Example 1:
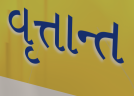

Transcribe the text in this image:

વૃત્તાન્ત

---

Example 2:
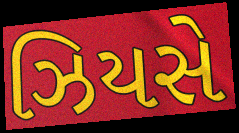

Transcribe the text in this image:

ઝિયસે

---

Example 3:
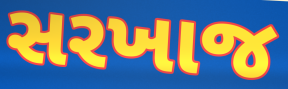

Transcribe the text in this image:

સરખાજ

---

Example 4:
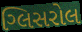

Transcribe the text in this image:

ગ્લિસરોલ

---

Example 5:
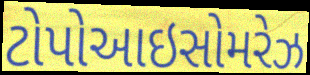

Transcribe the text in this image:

ટોપોઆઇસોમરેઝ